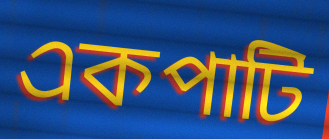
একপাটি